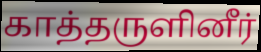
காத்தருளினீர்